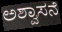
ಅಶ್ವಾಸನೆ